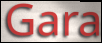
Gara